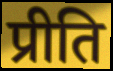
प्रीति